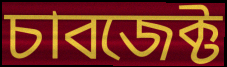
চাবজেক্ট